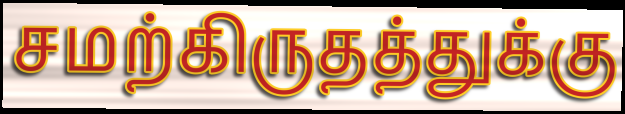
சமற்கிருதத்துக்கு